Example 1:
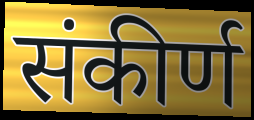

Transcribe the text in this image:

संकीर्ण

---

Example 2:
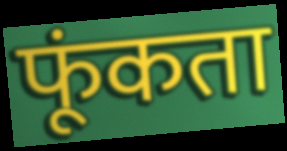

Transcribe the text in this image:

फूंकता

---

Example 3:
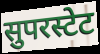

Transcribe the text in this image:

सुपरस्टेट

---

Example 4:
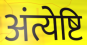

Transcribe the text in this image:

अंत्येष्टि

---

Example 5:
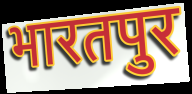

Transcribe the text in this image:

भारतपुर